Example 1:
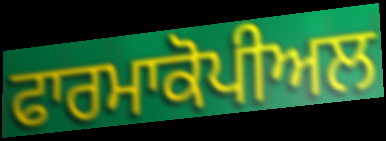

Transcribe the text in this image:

ਫਾਰਮਾਕੋਪੀਅਲ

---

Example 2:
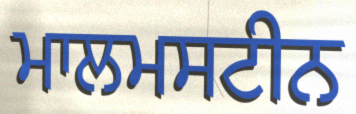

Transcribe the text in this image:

ਮਾਲਮਸਟੀਨ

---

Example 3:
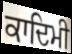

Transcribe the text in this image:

ਕਾਦਿਮੀ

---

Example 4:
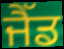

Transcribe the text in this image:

ਜੈੱਡ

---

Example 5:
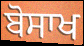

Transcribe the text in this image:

ਬੋਸਾਖ